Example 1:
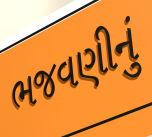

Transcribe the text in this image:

ભજવણીનું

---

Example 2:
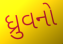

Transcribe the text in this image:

ધ્રુવનો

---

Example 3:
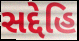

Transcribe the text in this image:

સદ્દેહિ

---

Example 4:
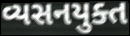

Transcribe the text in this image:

વ્યસનયુક્ત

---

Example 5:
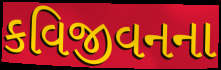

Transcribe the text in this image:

કવિજીવનના